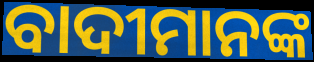
ବାଦୀମାନଙ୍କ